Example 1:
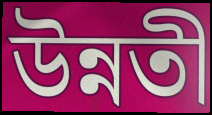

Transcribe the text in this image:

উন্নতী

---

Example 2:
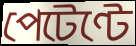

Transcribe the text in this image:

পেটেণ্টে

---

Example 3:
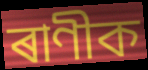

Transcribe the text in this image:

ৰাণীক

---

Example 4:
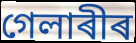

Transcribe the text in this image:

গেলাৰীৰ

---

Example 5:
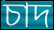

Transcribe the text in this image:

চাদ